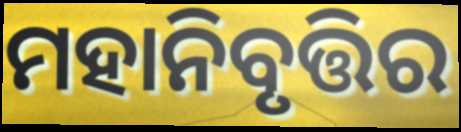
ମହାନିବୃତ୍ତିର